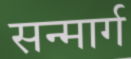
सन्‍मार्ग